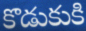
కొడుకుకి